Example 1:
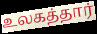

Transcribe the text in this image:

உலகத்தார்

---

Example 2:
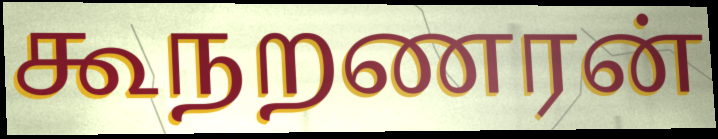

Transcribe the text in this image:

கூநறணரன்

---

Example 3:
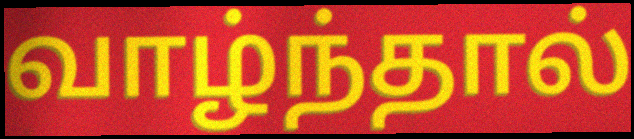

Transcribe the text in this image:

வாழ்ந்தால்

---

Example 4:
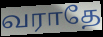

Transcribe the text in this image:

வராதே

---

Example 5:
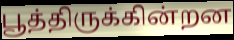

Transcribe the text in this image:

பூத்திருக்கின்றன